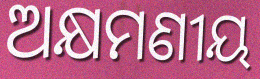
ଅକ୍ଷମଣୀୟ